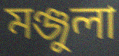
মঞ্জুলা